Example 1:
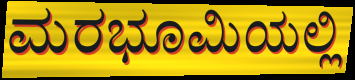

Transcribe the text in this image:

ಮರಭೂಮಿಯಲ್ಲಿ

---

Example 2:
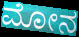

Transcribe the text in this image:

ಮೋನ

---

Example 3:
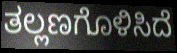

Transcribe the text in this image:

ತಲ್ಲಣಗೊಳಿಸಿದೆ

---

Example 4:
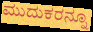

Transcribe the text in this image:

ಮುದುಕರನ್ನೂ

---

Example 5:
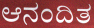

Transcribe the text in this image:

ಆನಂದಿತ